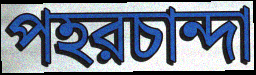
পহরচান্দা